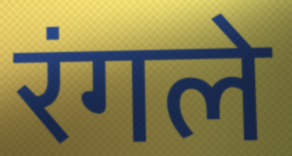
रंगले